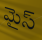
మైస్